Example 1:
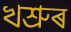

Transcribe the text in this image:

খশ্ৰুৰ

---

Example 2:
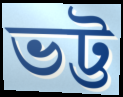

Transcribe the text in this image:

ভট্ট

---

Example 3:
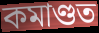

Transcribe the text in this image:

কমাণ্ডত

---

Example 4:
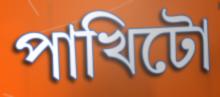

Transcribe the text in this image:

পাখিটো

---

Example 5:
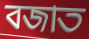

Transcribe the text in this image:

বজাত